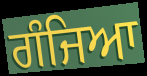
ਗੰਜਿਆ